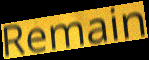
Remain